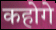
कहोगे